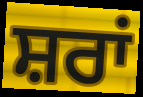
ਸ਼ਰਾਂ